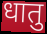
धातु